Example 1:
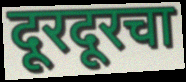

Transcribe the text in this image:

दूरदूरचा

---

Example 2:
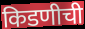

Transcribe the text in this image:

किडणीची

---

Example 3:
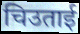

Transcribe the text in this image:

चिउताई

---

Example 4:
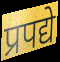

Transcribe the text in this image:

प्रपद्ये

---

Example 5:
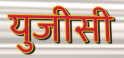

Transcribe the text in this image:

युजीसी